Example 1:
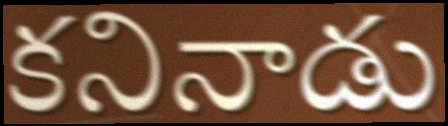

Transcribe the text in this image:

కనినాడు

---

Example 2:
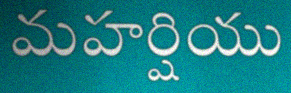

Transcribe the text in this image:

మహర్షియు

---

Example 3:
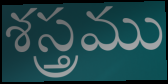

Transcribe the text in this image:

శస్త్రము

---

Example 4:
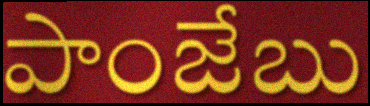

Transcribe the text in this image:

పాంజేబు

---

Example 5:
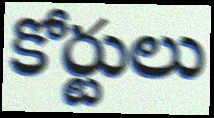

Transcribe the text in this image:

కోర్టులు